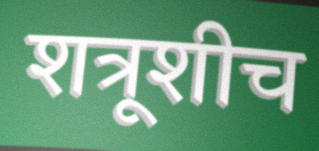
शत्रूशीच